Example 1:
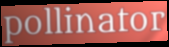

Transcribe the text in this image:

pollinator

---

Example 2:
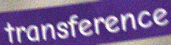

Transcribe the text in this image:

transference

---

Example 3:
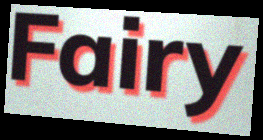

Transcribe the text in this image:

Fairy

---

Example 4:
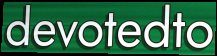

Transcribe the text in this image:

devotedto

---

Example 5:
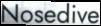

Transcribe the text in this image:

Nosedive